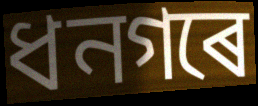
ধনগৰে